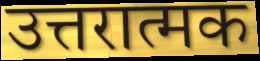
उत्तरात्मक